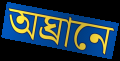
অঘ্রানে